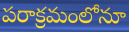
పరాక్రమంలోనూ